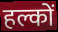
हल्कों